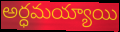
అర్ధమయ్యాయి